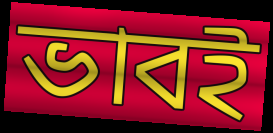
ভাবই